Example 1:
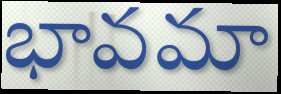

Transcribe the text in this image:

భావమా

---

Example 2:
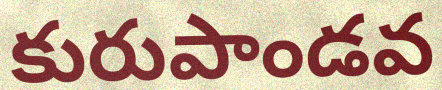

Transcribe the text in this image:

కురుపాండవ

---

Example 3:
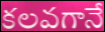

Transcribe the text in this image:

కలవగానే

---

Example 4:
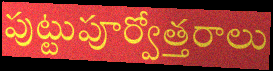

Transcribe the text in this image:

పుట్టుపూర్వోత్తరాలు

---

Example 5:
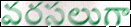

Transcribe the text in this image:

వరసలుగా